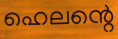
ഹെലന്റെ